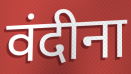
वंदीना